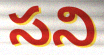
సని